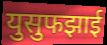
युसुफझाई